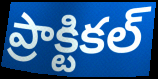
ప్రాక్టికల్